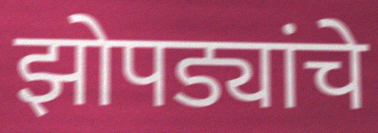
झोपड्यांचे